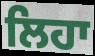
ਲਿਹਾ